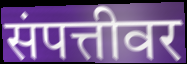
संपत्तीवर